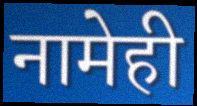
नामेही